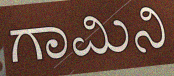
ಗಾಮಿನಿ